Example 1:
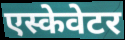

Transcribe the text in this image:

एस्केवेटर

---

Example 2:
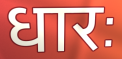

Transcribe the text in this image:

धारः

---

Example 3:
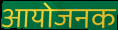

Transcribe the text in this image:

आयोजनक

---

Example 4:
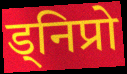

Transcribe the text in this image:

ड्निप्रो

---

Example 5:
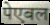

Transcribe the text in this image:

पेएबल